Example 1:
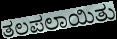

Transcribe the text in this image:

ತಲಪಲಾಯಿತು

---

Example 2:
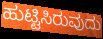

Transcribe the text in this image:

ಹುಟ್ಟಿಸಿರುವುದು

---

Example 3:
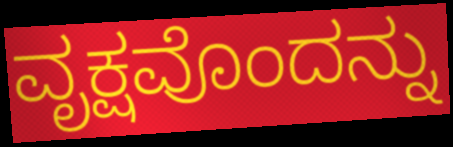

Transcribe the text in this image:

ವೃಕ್ಷವೊಂದನ್ನು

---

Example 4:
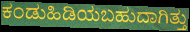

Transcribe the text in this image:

ಕಂಡುಹಿಡಿಯಬಹುದಾಗಿತ್ತು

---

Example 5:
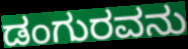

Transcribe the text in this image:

ಡಂಗುರವನು